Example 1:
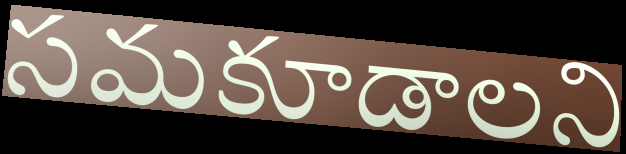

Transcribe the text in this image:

సమకూడాలని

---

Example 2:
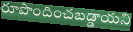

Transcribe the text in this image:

రూపొందించబడ్డాయని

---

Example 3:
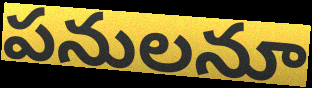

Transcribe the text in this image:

పనులనూ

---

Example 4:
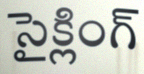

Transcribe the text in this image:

సైక్లింగ్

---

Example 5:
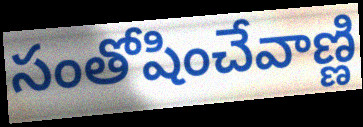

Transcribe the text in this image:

సంతోషించేవాణ్ణి